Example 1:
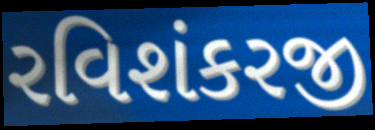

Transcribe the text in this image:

રવિશંકરજી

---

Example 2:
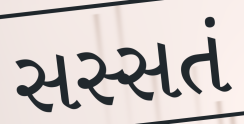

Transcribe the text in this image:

સસ્સતં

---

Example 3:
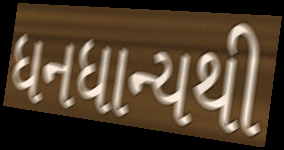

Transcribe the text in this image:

ધનધાન્યથી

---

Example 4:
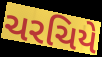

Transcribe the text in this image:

ચરચિયે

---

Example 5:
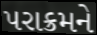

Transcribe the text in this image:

પરાક્રમને